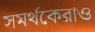
সমর্থকেরাও